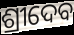
ଶ୍ରୀଦେବ